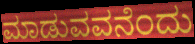
ಮಾಡುವವನೆಂದು